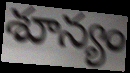
శూన్యం